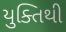
યુક્તિથી